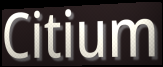
Citium